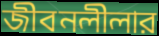
জীবনলীলার